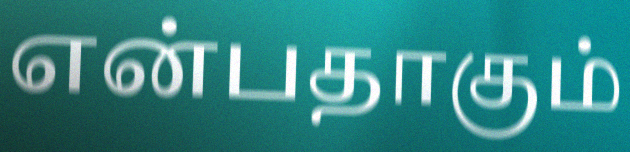
என்பதாகும்